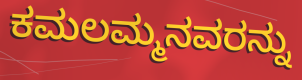
ಕಮಲಮ್ಮನವರನ್ನು